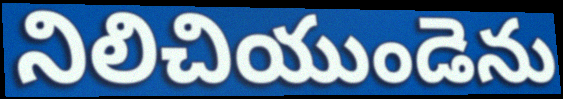
నిలిచియుండెను